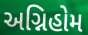
અગ્નિહોમ